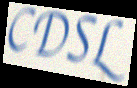
CDSL